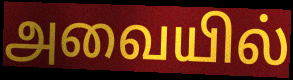
அவையில்